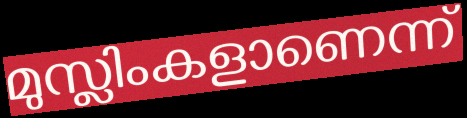
മുസ്ലിംകളാണെന്ന്